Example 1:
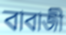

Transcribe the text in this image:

বাবাজী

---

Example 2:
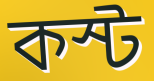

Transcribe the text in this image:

কস্ট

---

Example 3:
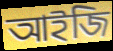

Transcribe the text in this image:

আইজি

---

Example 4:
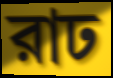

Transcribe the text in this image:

রাঢ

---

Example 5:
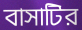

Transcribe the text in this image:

বাসাটির